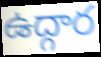
ఉద్గార